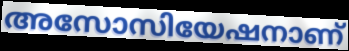
അസോസിയേഷനാണ്